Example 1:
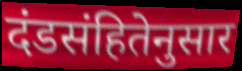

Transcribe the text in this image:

दंडसंहितेनुसार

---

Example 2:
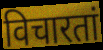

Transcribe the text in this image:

विचारतां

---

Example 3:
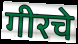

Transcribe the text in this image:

गीरचे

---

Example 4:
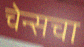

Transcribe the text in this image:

चेन्सचा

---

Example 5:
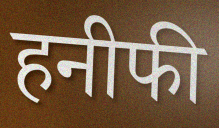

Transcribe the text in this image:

हनीफी